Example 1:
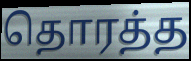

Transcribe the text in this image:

தொரத்த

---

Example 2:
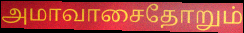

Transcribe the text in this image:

அமாவாசைதோறும்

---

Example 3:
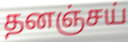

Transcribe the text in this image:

தனஞ்சய்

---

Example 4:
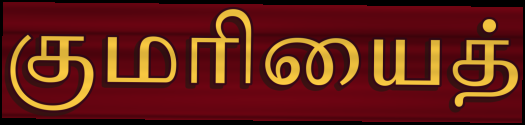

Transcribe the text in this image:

குமரியைத்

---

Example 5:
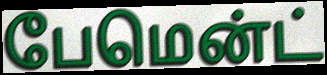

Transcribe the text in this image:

பேமென்ட்